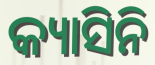
କ୍ୟାସିନି